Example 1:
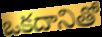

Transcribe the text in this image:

ఒకదానితో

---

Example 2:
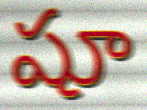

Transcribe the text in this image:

షూ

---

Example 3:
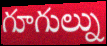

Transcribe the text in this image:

గూగుల్ను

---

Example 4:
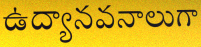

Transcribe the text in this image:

ఉద్యానవనాలుగా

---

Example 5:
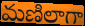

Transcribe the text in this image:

మణిలాగా